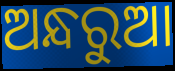
ଅନ୍ଧରୁଆ